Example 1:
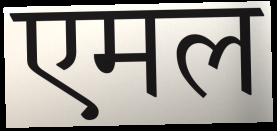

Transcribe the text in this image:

एमल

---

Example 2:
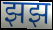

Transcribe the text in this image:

झझ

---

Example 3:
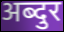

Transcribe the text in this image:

अब्दुर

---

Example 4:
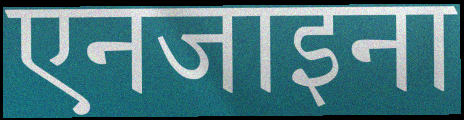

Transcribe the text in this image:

एनजाइना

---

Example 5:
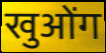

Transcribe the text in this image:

खुओंग